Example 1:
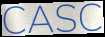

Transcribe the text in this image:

CASC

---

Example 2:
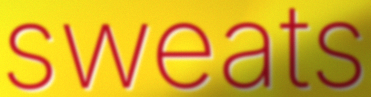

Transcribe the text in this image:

sweats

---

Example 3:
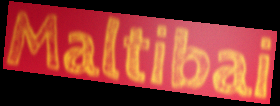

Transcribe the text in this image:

Maltibai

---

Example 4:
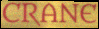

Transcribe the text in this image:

CRANE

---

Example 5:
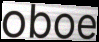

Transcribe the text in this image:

oboe